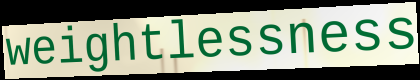
weightlessness